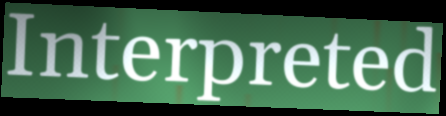
Interpreted